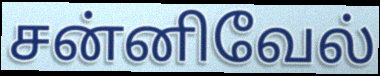
சன்னிவேல்